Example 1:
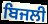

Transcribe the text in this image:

ਬਿਜਲੀ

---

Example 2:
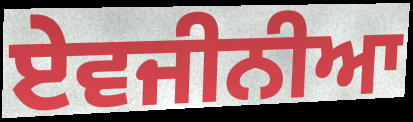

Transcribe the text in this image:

ਏਵਜੀਨੀਆ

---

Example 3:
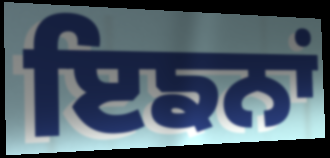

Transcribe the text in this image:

ਇਙਨਾਂ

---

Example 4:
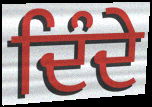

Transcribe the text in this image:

ਦਿੰਦੇ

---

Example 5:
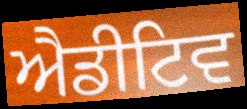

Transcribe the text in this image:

ਐਡੀਟਿਵ